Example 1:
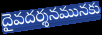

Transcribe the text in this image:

దైవదర్శనమునకు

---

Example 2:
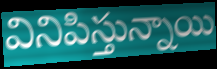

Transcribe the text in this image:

వినిపిస్తున్నాయి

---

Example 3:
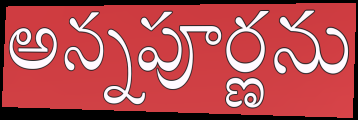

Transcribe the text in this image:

అన్నపూర్ణను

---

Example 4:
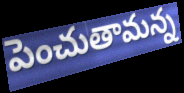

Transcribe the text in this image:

పెంచుతామన్న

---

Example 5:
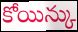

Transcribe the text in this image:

కోయిన్కు